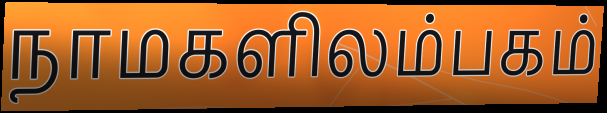
நாமகளிலம்பகம்